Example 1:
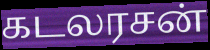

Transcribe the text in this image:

கடலரசன்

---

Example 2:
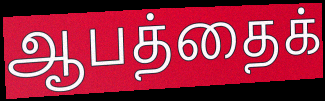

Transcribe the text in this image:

ஆபத்தைக்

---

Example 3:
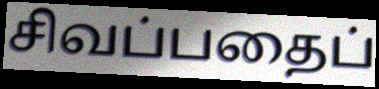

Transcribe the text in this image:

சிவப்பதைப்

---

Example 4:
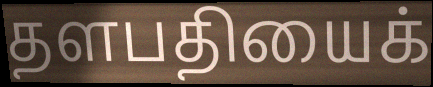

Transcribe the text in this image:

தளபதியைக்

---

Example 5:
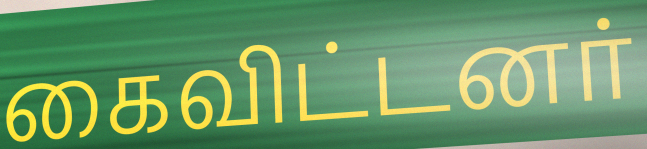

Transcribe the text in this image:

கைவிட்டனர்